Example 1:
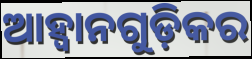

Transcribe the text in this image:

ଆହ୍ଵାନଗୁଡ଼ିକର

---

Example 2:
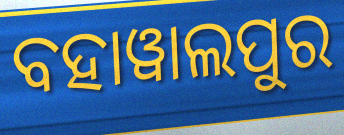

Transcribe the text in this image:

ବହାୱାଲପୁର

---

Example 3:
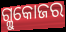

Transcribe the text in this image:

ଗ୍ଲୁକୋଜର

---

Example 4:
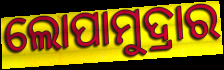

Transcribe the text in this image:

ଲୋପାମୁଦ୍ରାର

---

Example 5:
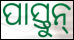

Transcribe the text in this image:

ପାସ୍ତୁନ୍